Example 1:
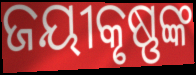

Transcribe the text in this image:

ଜୟୀକୃଷ୍ଣଙ୍କ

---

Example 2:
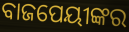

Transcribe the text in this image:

ବାଜପେୟୀଙ୍କର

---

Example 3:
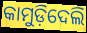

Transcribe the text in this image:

କାମୁଡ଼ିଦେଲି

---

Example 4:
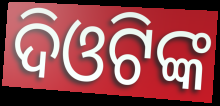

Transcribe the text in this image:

ଦିଓଟିଙ୍କ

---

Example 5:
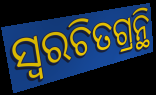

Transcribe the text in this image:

ସ୍ଵରଚିତଗ୍ରନ୍ଥି